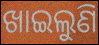
ଖାଇଲୁଣି